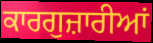
ਕਾਰਗੁਜ਼ਾਰੀਆਂ